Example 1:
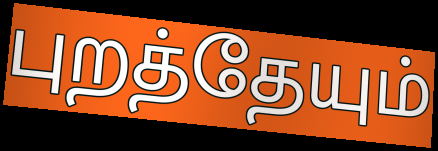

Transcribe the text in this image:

புறத்தேயும்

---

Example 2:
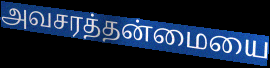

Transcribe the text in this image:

அவசரத்தன்மையை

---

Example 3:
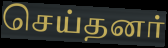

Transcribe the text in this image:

செய்தனர்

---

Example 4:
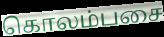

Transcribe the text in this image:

கொலம்பசை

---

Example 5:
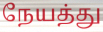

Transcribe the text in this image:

நேயத்து